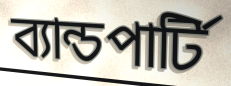
ব্যান্ডপার্টি